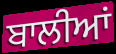
ਬਾਲੀਆਂ